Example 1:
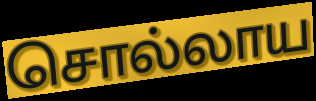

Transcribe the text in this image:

சொல்லாய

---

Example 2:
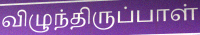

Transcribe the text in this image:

விழுந்திருப்பாள்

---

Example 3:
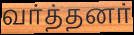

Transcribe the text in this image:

வர்த்தனர்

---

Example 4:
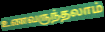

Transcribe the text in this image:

உணவருந்தலாம்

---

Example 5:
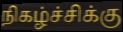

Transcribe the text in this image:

நிகழ்ச்சிக்கு